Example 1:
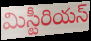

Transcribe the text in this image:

మిస్టీరియస్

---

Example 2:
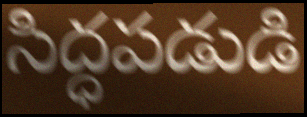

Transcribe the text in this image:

సిద్ధపడుడి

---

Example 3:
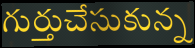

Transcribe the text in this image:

గుర్తుచేసుకున్న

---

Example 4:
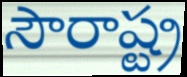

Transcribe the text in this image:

సౌరాష్ట్ర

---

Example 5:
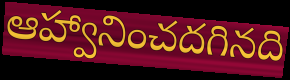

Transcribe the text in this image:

ఆహ్వానించదగినది